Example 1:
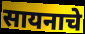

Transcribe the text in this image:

सायनाचे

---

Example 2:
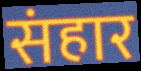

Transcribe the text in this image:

संहार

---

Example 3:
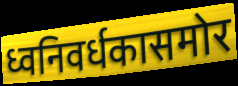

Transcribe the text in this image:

ध्वनिवर्धकासमोर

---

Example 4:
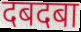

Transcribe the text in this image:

दबदबा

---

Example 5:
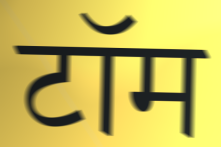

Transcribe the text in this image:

टॉम